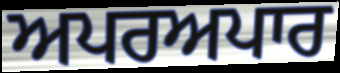
ਅਪਰਅਪਾਰ